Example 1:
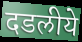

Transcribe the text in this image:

दडलीये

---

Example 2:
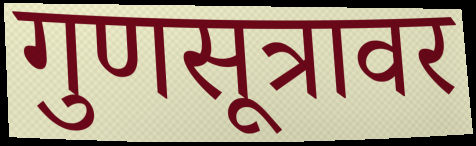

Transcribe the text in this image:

गुणसूत्रावर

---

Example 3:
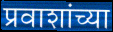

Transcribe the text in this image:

प्रवाशांच्या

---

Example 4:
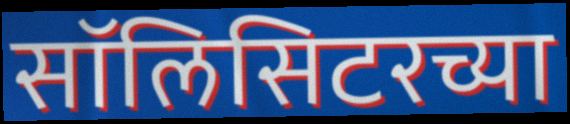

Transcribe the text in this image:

सॉलिसिटरच्या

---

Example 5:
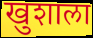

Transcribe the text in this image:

खुशाला